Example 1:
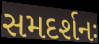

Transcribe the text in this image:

સમદર્શનઃ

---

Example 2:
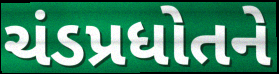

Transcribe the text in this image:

ચંડપ્રધોતને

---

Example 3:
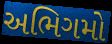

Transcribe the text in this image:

અભિગમો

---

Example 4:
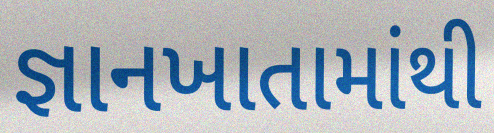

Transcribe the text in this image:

જ્ઞાનખાતામાંથી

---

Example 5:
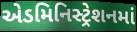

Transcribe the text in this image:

એડમિનિસ્ટ્રેશનમાં